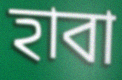
হাবা